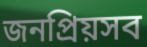
জনপ্রিয়সব